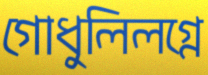
গোধুলিলগ্নে